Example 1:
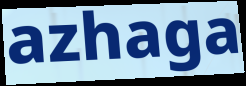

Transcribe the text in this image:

azhaga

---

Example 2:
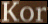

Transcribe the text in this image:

Kor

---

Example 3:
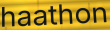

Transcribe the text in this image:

haathon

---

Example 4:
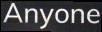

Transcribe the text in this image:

Anyone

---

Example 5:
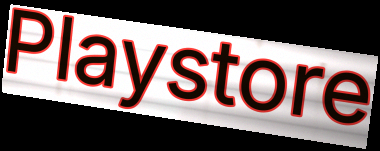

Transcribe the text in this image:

Playstore